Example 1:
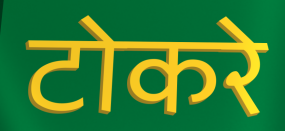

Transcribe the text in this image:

टोकरे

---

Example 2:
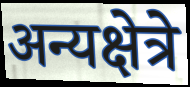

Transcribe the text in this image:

अन्यक्षेत्रे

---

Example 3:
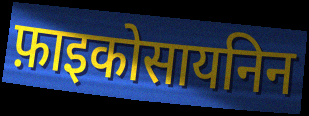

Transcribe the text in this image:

फ़ाइकोसायनिन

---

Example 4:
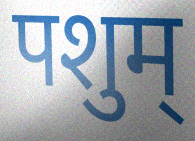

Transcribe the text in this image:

पशुम्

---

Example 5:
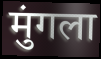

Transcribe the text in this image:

मुंगला